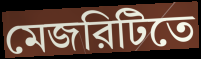
মেজরিটিতে